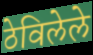
ठेविलेले